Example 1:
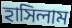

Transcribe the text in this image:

হাসিলাম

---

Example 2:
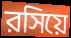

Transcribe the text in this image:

রসিয়ে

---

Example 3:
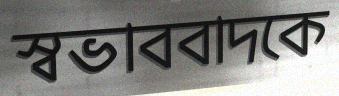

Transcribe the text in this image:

স্বভাববাদকে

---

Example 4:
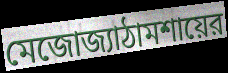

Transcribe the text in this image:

মেজোজ্যাঠামশায়ের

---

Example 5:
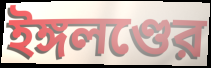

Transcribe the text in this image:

ইঙ্গলণ্ডের